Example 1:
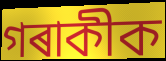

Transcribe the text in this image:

গৰাকীক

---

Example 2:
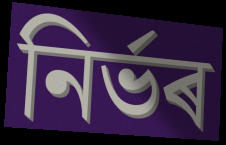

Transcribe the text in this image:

নিৰ্ভৰ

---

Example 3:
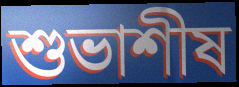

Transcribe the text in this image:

শুভাশীষ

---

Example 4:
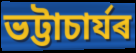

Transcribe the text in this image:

ভট্টাচাৰ্যৰ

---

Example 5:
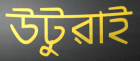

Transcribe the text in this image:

উটুৱাই